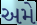
અમે